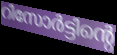
റിസോർട്ടിന്റെ